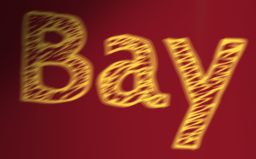
Bay